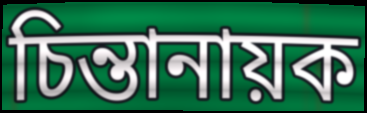
চিন্তানায়ক